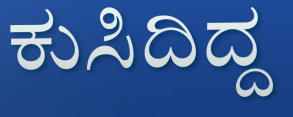
ಕುಸಿದಿದ್ದ